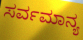
ಸರ್ವಮಾನ್ಯ